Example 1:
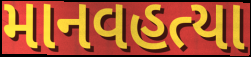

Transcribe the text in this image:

માનવહત્યા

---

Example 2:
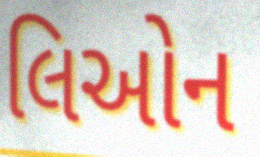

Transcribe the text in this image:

લિઓન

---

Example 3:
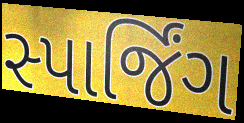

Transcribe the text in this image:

સ્પાર્જિંગ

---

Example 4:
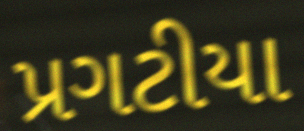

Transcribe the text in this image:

પ્રગટીયા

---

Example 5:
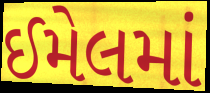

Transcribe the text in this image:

ઈમેલમાં